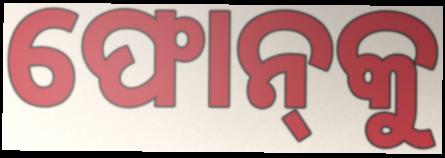
ଫୋନ୍‌କୁ